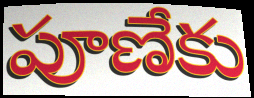
పూణేకు